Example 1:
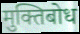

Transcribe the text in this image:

मुक्तिबोध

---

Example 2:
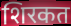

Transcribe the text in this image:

शिरकत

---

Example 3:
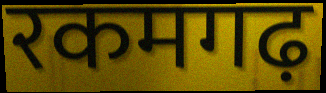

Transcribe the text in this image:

रकमगढ़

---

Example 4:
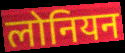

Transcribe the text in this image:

लोनियन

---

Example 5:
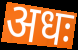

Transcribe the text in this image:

अधः